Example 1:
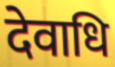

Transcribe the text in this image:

देवाधि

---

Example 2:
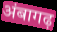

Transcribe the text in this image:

अंबागढ़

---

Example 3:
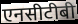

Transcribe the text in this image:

एनसीटीबी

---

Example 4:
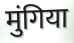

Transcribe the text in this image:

मुंगिया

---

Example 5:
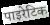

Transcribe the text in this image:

पाइरेटिक